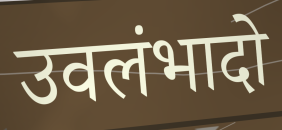
उवलंभादो